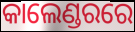
କାଲେଣ୍ଡରରେ